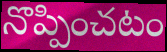
నొప్పించటం